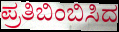
ಪ್ರತಿಬಿಂಬಿಸಿದ